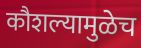
कौशल्यामुळेच